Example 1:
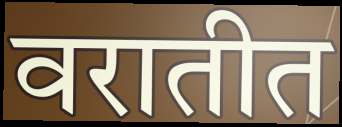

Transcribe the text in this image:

वरातीत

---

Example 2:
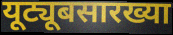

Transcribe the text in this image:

यूट्यूबसारख्या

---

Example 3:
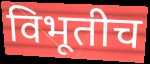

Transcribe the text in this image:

विभूतीच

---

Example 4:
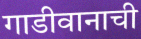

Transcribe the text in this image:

गाडीवानाची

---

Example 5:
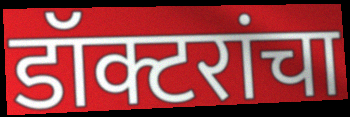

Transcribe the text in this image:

डॉक्टरांचा